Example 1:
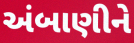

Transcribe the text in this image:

અંબાણીને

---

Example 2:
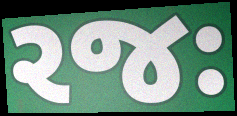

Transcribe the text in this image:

રજઃ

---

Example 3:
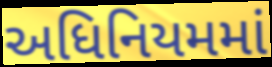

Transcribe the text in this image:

અધિનિયમમાં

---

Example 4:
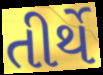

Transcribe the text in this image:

તીર્થે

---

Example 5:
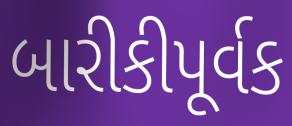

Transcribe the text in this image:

બારીકીપૂર્વક